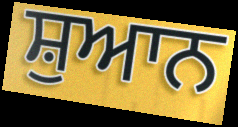
ਸ਼ੁਆਨ